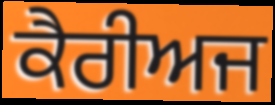
ਕੈਰੀਅਜ